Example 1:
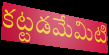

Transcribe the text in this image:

కట్టడమేమిటి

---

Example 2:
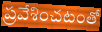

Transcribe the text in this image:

ప్రవేశించటంతో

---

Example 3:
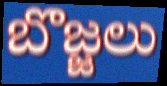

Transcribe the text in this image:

బొజ్జలు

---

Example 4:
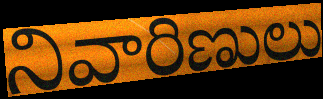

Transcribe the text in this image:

నివారిణులు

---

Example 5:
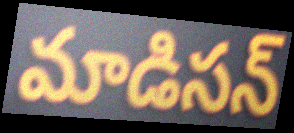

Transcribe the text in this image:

మాడిసన్